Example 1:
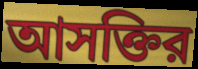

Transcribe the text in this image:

আসক্তির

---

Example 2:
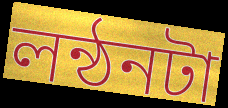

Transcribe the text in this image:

লন্ঠনটা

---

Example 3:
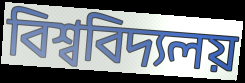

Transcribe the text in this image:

বিশ্ববিদ্যলয়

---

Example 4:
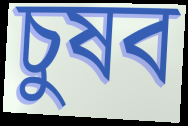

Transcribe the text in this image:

চুষব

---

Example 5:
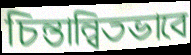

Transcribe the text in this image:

চিন্তান্বিতভাবে